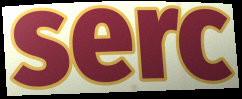
serc